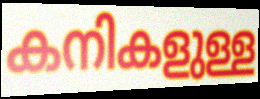
കനികളുള്ള